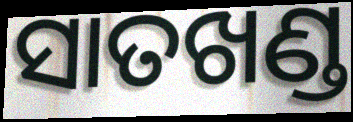
ସାତଖଣ୍ଡ